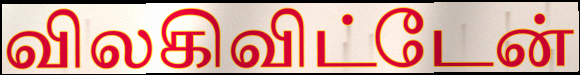
விலகிவிட்டேன்